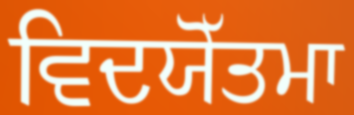
ਵਿਦਯੋੱਤਮਾ